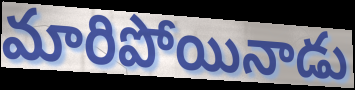
మారిపోయినాడు